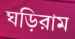
ঘড়িরাম